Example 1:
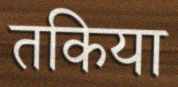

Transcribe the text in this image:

तकिया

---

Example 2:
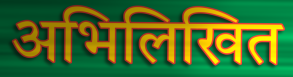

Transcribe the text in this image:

अभिलिखित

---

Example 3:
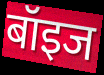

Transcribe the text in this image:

बॉइज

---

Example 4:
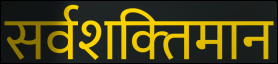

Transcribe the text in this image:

सर्वशक्‍तिमान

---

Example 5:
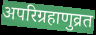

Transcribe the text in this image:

अपरिग्रहाणुव्रत